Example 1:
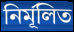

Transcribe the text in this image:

নির্মূলিত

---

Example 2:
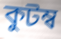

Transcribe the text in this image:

কুটম্ব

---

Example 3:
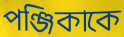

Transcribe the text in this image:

পঞ্জিকাকে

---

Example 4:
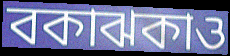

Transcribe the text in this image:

বকাঝকাও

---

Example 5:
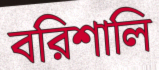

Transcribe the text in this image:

বরিশালি